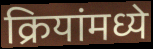
क्रियांमध्ये